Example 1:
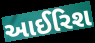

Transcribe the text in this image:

આઈરિશ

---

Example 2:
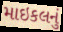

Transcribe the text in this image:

માઇકલનું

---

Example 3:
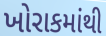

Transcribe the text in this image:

ખોરાકમાંથી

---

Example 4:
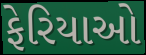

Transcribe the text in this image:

ફેરિયાઓ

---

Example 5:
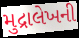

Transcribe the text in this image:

મુદ્રાલેખની